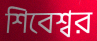
শিবেশ্বর